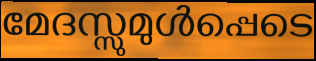
മേദസ്സുമുൾപ്പെടെ